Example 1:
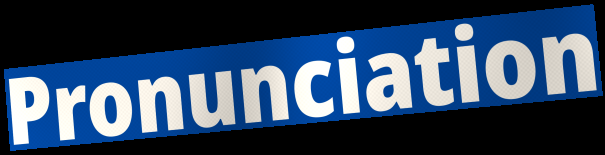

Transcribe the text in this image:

Pronunciation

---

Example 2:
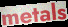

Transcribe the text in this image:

metals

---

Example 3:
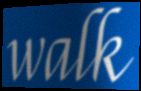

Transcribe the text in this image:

walk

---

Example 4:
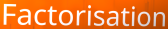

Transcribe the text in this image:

Factorisation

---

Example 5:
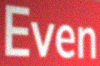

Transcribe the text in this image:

Even